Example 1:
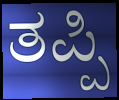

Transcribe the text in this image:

ತಪ್ಪಿ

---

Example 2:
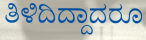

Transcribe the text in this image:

ತಿಳಿದಿದ್ದಾದರೂ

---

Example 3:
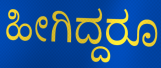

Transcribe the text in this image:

ಹೀಗಿದ್ದರೂ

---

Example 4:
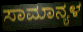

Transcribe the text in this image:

ಸಾಮಾನ್ಯಳ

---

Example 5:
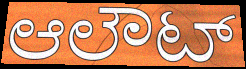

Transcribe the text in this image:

ಆಲೌಟ್